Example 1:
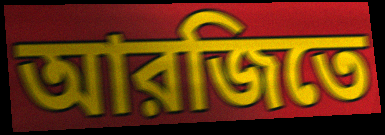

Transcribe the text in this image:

আরজিতে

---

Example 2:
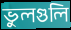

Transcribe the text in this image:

ভুলগুলি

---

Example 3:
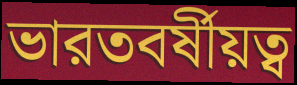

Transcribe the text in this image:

ভারতবর্ষীয়ত্ব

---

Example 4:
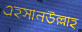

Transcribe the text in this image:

এহসানউল্লাহ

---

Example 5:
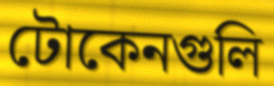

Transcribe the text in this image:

টোকেনগুলি